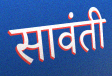
सावंती